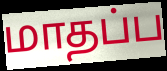
மாதப்ப